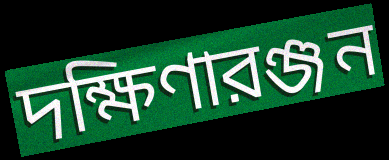
দক্ষিণারঞ্জন